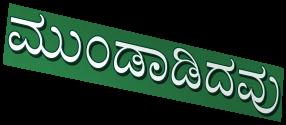
ಮುಂಡಾಡಿದವು